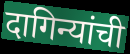
दागिन्यांची